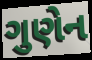
ગુણેન